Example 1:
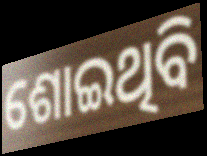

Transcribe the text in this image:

ଶୋଇଥିବି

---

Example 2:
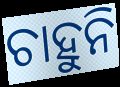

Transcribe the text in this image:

ଚାହୁନି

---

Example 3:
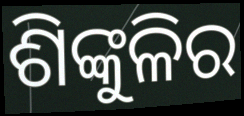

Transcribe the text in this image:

ଶିଙ୍କୁଳିର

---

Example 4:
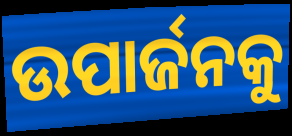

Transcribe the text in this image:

ଉପାର୍ଜନକୁ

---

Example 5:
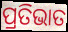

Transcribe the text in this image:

ପ୍ରତିଭାତ